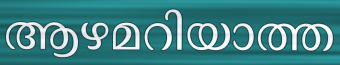
ആഴമറിയാത്ത